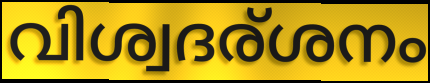
വിശ്വദര്ശനം